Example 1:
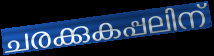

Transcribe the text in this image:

ചരക്കുകപ്പലിന്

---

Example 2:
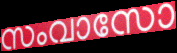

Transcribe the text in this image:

സംവാസോ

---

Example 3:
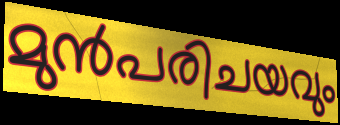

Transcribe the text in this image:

മുൻപരിചയവും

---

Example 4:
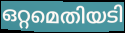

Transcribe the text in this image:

ഒറ്റമെതിയടി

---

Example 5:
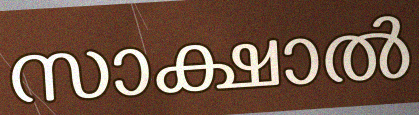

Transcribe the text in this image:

സാക്ഷാൽ